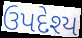
ઉપદેશ્ય